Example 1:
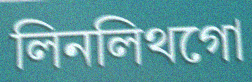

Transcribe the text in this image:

লিনলিথগো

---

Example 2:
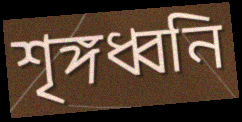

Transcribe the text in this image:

শৃঙ্গধ্বনি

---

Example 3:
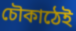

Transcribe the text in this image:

চৌকাঠেই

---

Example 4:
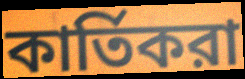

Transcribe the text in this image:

কার্তিকরা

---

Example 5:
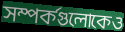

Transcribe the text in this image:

সম্পর্কগুলোকেও